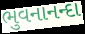
ભુવનાનન્દા